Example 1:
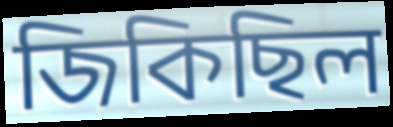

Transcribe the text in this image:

জিকিছিল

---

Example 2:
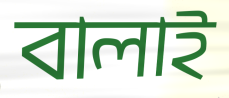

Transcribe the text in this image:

বালাই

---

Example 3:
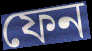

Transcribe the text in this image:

ফেন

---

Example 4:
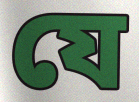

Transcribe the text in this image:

যে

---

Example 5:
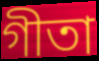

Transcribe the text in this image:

গীতা